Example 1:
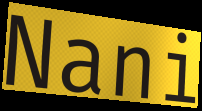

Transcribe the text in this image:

Nani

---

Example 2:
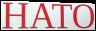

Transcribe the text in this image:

HATO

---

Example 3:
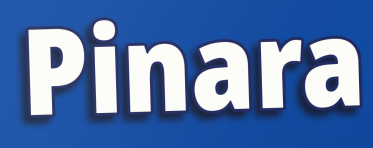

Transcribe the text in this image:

Pinara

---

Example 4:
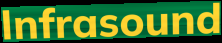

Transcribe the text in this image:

Infrasound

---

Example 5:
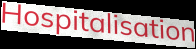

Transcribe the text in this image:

Hospitalisation